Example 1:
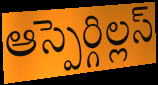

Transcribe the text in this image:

ఆస్పెర్గిల్లస్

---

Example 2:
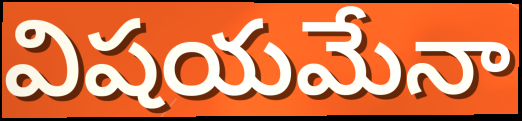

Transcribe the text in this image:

విషయమేనా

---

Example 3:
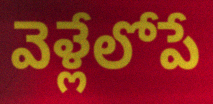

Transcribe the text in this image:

వెళ్లేలోపే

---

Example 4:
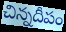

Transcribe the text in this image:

చిన్నదీపం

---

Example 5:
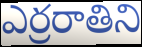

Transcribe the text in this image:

ఎర్రరాతిని